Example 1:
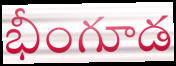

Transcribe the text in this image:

భీంగూడ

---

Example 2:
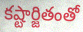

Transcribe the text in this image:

కష్టార్జితంతో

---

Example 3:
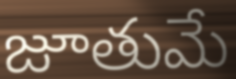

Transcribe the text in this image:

జూతుమే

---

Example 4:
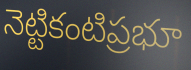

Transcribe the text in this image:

నెట్టికంటిప్రభూ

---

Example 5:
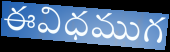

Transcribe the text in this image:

ఈవిధముగ